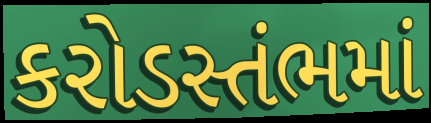
કરોડસ્તંભમાં